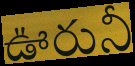
ఊరునీ